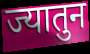
ज्यातुन